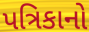
પત્રિકાનો